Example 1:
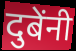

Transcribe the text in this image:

दुबेंनी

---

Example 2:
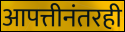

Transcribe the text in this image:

आपत्तीनंतरही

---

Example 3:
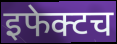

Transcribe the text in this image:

इफेक्टच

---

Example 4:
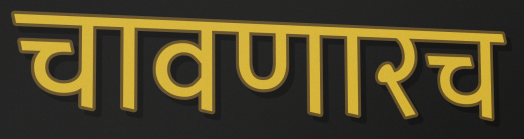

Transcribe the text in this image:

चावणारच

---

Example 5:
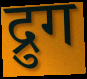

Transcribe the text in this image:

द्रुग